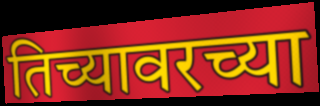
तिच्यावरच्या